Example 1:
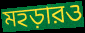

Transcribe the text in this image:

মহড়ারও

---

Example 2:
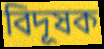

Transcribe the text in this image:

বিদূষক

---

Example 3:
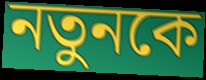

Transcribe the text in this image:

নতুনকে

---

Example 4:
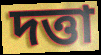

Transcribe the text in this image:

দত্তা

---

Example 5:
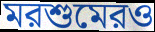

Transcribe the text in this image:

মরশুমেরও